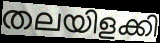
തലയിളക്കി